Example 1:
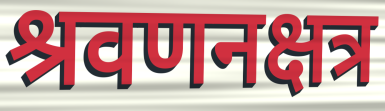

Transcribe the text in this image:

श्रवणनक्षत्र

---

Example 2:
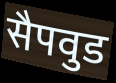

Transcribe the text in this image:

सैपवुड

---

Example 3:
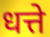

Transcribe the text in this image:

धत्ते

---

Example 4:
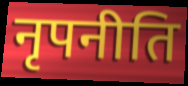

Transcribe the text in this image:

नृपनीति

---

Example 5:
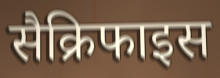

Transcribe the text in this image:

सैक्रिफाइस